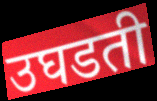
उघडती